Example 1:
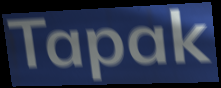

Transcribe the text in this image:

Tapak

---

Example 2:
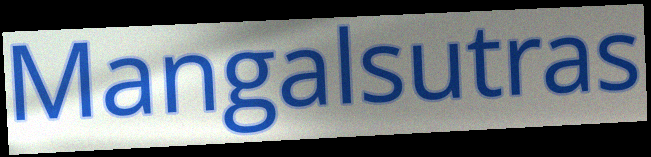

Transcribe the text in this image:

Mangalsutras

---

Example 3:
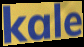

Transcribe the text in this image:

kale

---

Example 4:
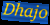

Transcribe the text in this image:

Dhajo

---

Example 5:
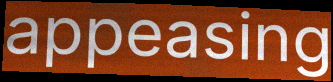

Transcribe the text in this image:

appeasing